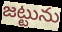
జట్టును